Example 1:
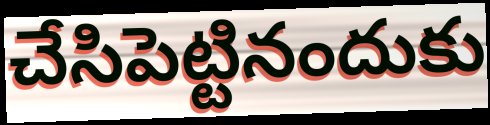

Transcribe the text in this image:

చేసిపెట్టినందుకు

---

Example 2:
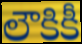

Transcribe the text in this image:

లౌకికీ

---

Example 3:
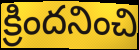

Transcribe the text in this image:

క్రిందనించి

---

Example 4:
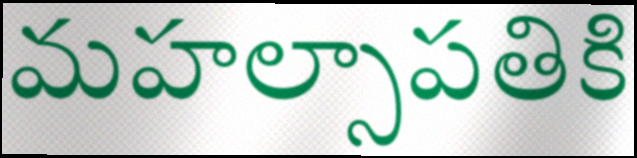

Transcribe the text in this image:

మహల్సాపతికి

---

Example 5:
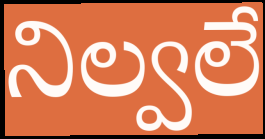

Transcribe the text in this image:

నిల్వలే